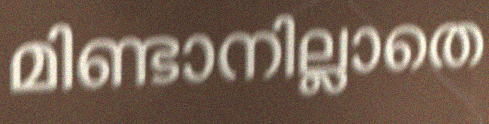
മിണ്ടാനില്ലാതെ